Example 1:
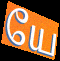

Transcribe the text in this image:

யே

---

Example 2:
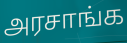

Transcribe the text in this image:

அரசாங்க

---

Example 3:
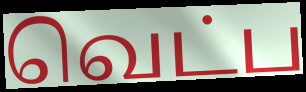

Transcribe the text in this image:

வெட்ப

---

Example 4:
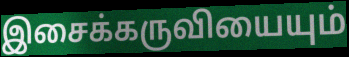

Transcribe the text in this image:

இசைக்கருவியையும்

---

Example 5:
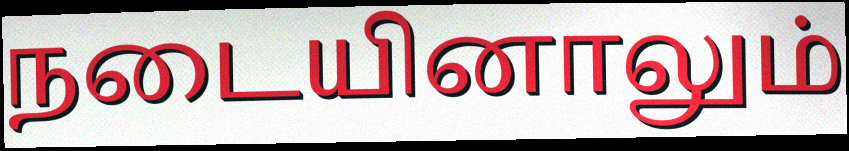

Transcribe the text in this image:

நடையினாலும்